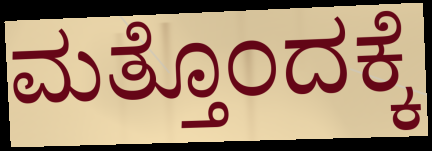
ಮತ್ತೊಂದಕ್ಕೆ